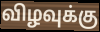
விழவுக்கு